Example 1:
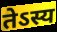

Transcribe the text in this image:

तेऽस्य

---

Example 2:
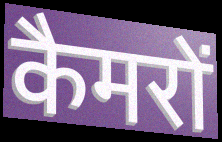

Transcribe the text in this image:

कैमरों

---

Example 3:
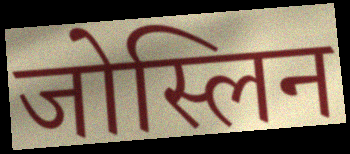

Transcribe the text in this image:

जोस्लिन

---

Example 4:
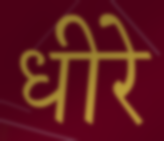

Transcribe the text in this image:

धीरे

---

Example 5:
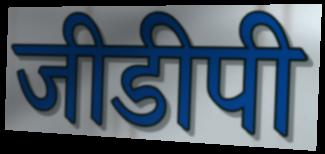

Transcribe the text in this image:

जीडीपी